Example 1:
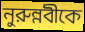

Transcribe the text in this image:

নুরুন্নবীকে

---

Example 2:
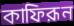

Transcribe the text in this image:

কাফিরূন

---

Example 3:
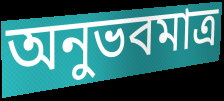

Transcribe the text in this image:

অনুভবমাত্র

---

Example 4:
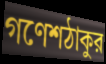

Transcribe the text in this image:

গণেশঠাকুর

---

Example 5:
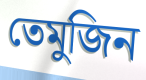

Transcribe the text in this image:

তেমুজিন